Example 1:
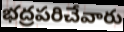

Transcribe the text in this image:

భద్రపరిచేవారు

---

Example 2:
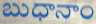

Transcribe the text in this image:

బుధానాం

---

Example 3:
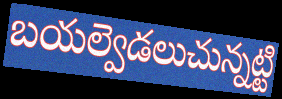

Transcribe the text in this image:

బయల్వెడలుచున్నట్టి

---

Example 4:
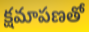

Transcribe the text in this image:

క్షమాపణతో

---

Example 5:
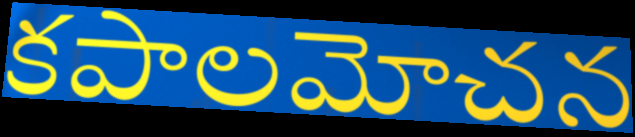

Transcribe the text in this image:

కపాలమోచన